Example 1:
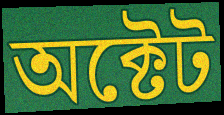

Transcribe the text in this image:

অক্টেট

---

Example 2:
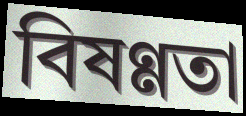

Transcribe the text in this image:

বিষণ্ণতা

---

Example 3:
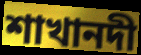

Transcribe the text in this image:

শাখানদী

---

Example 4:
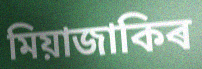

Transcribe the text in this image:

মিয়াজাকিৰ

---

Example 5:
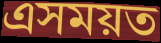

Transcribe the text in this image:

এসময়ত